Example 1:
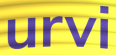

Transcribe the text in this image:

urvi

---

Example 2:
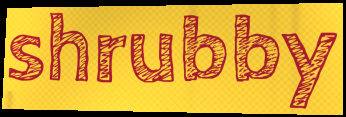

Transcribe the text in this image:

shrubby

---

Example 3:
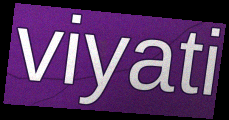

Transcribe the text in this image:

viyati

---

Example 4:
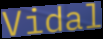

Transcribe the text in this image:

Vidal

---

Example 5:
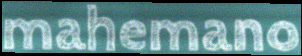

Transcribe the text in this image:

mahemano